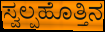
ಸ್ವಲ್ಪಹೊತ್ತಿನ